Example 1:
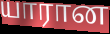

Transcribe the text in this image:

யாரான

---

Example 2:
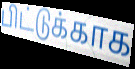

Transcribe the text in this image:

பிட்டுக்காக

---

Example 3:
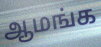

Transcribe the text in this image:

ஆமங்க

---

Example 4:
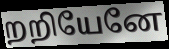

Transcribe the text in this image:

றறியேனே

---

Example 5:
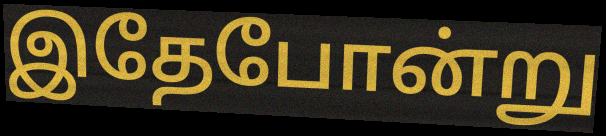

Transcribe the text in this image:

இதேபோன்று